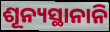
ଶୂନ୍ୟସ୍ଥାନାନି